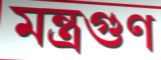
মন্ত্রগুণ